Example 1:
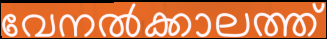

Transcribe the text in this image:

വേനൽക്കാലത്ത്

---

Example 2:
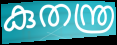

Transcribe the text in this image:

കുതന്ത്ര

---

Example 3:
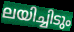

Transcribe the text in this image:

ലയിച്ചിടും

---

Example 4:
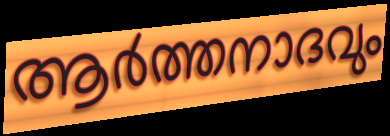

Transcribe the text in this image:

ആർത്തനാദവും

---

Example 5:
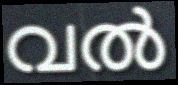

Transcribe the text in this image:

വൽ